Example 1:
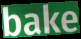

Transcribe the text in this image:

bake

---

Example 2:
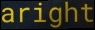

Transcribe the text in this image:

aright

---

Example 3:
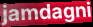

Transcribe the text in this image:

jamdagni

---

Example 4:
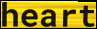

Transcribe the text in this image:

heart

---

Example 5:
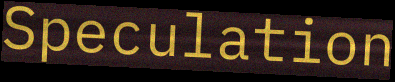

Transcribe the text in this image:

Speculation